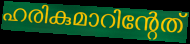
ഹരികുമാറിന്റേത്